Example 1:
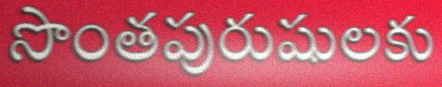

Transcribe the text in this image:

సొంతపురుషులకు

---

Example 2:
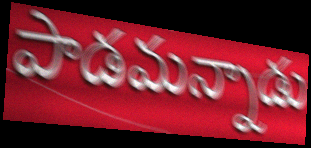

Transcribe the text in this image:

పాడమన్నాడు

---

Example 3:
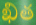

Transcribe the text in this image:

ఖిత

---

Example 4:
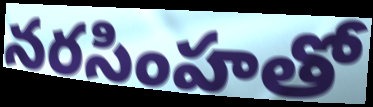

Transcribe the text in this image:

నరసింహతో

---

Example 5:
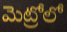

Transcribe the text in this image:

మెట్రోలో